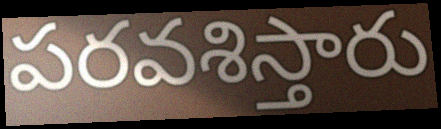
పరవశిస్తారు